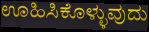
ಊಹಿಸಿಕೊಳ್ಳುವುದು